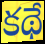
కథే